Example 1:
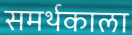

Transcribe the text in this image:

समर्थकाला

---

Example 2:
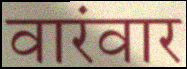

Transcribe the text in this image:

वारंवार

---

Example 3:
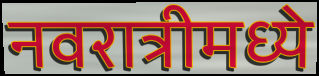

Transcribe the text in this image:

नवरात्रीमध्ये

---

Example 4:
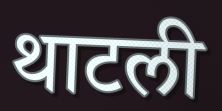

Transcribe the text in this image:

थाटली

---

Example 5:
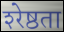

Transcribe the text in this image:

श्रेष्ठता